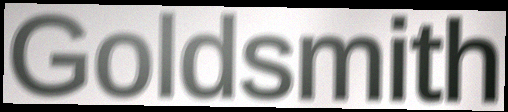
Goldsmith